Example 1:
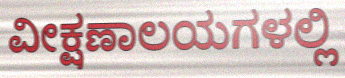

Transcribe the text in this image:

ವೀಕ್ಷಣಾಲಯಗಳಲ್ಲಿ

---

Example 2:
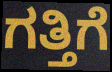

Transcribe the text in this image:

ಗತ್ತಿಗೆ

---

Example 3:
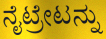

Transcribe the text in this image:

ನೈಟ್ರೇಟನ್ನು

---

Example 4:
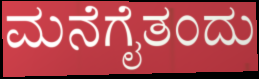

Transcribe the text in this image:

ಮನೆಗೈತಂದು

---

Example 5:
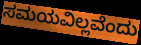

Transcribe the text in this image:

ಸಮಯವಿಲ್ಲವೆಂದು